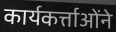
कार्यकर्त्ताओंने